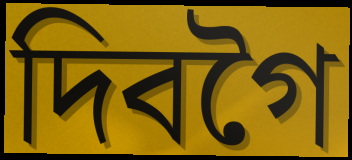
দিবগৈ